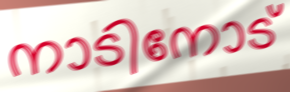
നാടിനോട്